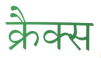
क्रैक्स